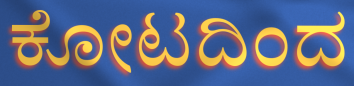
ಕೋಟದಿಂದ